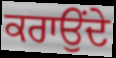
ਕਰਾਉਂਦੇ